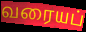
வரையப்